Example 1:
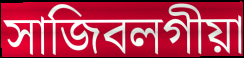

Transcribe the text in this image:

সাজিবলগীয়া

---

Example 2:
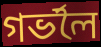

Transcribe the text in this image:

গৰ্ভলৈ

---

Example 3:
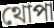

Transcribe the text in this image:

থোপা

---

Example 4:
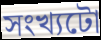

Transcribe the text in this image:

সংখ্যটো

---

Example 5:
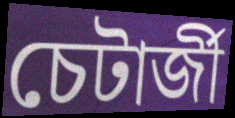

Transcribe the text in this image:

চেটাৰ্জী